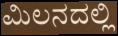
ಮಿಲನದಲ್ಲಿ